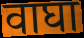
वाघा